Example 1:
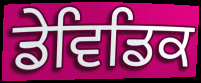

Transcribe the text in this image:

ਡੇਵਿਡਿਕ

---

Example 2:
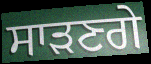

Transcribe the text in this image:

ਸਾੜਣਗੇ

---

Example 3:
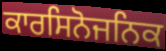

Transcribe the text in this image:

ਕਾਰਸਿਨੋਜਨਿਕ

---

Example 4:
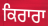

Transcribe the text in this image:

ਕਿਰਾਰਾ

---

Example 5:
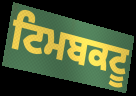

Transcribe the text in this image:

ਟਿਮਬਕਟੂ